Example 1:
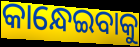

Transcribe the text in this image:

କାନ୍ଧେଇବାକୁ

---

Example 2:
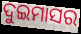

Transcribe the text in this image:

ଦୁଇମାସର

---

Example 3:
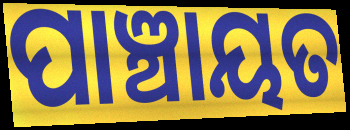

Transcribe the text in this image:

ପାଞ୍ଚାୟତ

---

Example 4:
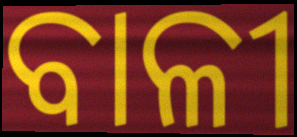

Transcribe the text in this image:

ବାଳୀ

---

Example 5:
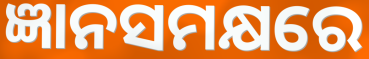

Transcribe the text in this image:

ଜ୍ଞାନସମକ୍ଷରେ